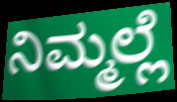
ನಿಮ್ಮಲ್ಲೆ